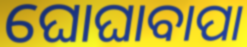
ଘୋଘାବାପା